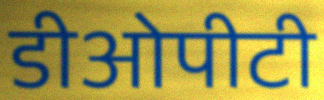
डीओपीटी